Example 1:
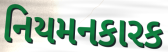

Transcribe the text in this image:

નિયમનકારક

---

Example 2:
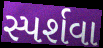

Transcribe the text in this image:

સ્પર્શવા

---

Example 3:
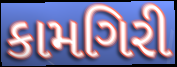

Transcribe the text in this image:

કામગિરી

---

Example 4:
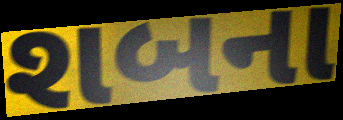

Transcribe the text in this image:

શબના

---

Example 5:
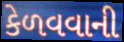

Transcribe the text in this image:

કેળવવાની